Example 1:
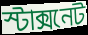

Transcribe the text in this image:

স্টাক্সনেট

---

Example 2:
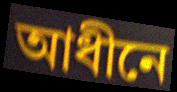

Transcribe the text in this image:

আধীনে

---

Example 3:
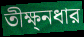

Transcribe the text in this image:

তীক্ষ্নধার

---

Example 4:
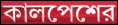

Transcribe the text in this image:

কালপেশের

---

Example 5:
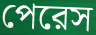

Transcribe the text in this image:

পেরেস